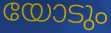
യോടും